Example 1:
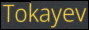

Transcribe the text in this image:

Tokayev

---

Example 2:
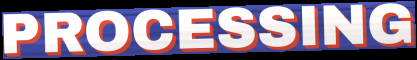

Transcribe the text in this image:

PROCESSING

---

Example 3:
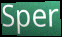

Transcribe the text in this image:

Sper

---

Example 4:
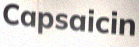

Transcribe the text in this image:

Capsaicin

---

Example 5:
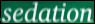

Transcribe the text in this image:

sedation